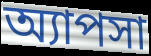
অ্যাপসা